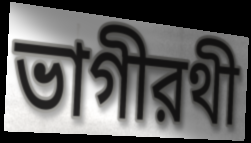
ভাগীরথী